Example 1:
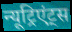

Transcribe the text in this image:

न्यूट्रिएंट्स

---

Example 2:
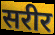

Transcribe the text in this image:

सरीर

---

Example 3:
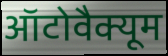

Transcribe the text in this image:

ऑटोवैक्यूम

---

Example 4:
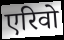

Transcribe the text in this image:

एरिवो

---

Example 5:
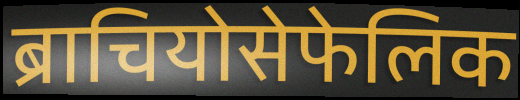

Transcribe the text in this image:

ब्राचियोसेफेलिक